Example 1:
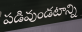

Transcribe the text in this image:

పడివుండటాన్ని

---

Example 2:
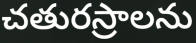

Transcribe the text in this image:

చతురస్రాలను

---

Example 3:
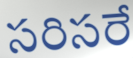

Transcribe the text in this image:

సరిసరే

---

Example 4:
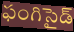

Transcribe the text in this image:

ఫంగిసైడ్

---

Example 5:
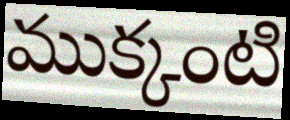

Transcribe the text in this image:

ముక్కంటి